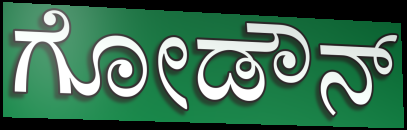
ಗೋಡೌನ್